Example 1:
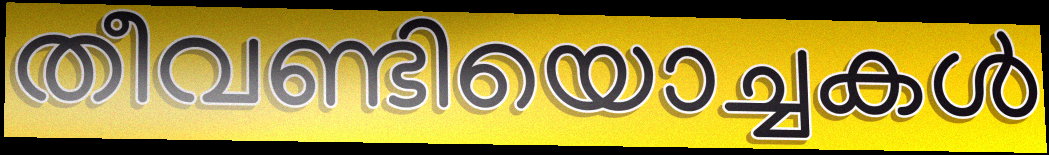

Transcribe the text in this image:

തീവണ്ടിയൊച്ചകൾ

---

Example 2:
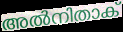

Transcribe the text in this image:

അൽനിതാക്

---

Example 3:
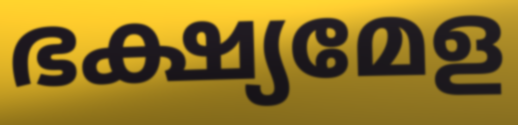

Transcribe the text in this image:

ഭക്ഷ്യമേള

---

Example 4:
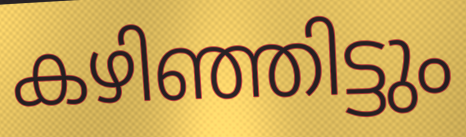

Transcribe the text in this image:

കഴിഞ്ഞിട്ടും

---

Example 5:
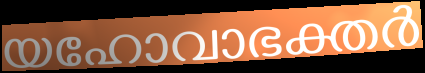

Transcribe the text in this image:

യഹോവാഭക്തർ